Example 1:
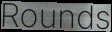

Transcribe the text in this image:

Rounds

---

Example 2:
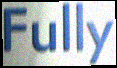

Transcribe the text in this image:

Fully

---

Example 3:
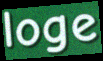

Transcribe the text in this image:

loge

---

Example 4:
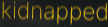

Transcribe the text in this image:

kidnapped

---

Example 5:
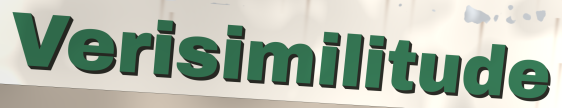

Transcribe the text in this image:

Verisimilitude